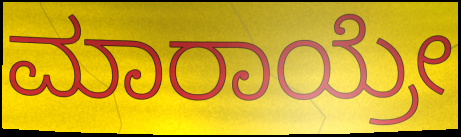
ಮಾರಾಯ್ರೇ